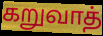
கறுவாத்